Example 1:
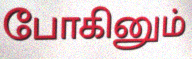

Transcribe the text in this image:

போகினும்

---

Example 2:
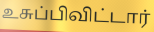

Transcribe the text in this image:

உசுப்பிவிட்டார்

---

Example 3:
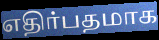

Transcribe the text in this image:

எதிர்பதமாக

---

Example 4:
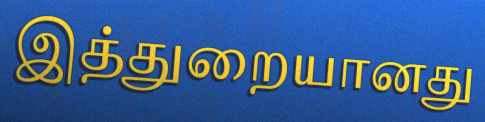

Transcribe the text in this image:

இத்துறையானது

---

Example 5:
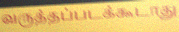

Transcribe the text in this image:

வருத்தப்படக்கூடாது